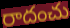
రాదంచు